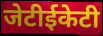
जेटीईकेटी